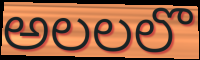
అలలలొ